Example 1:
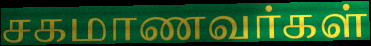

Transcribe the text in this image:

சகமாணவர்கள்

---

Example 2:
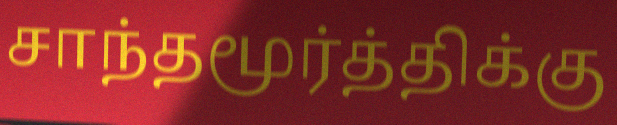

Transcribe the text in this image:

சாந்தமூர்த்திக்கு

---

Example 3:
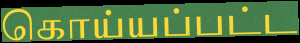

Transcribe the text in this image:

கொய்யப்பட்ட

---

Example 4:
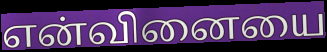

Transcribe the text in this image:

என்வினையை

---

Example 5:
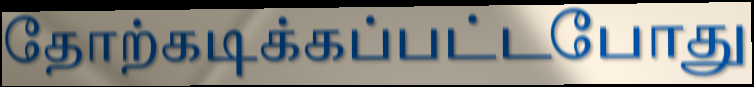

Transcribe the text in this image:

தோற்கடிக்கப்பட்டபோது